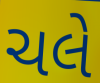
ચલે